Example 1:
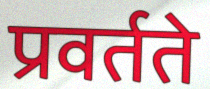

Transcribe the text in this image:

प्रवर्तते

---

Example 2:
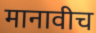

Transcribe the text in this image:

मानावीच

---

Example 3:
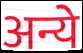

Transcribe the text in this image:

अन्ये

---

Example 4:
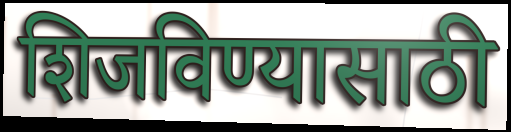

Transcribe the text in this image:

शिजविण्यासाठी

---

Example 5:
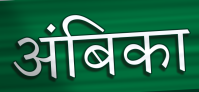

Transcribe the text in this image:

अंबिका